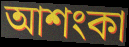
আশংকা